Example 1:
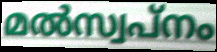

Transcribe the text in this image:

മൽസ്വപ്നം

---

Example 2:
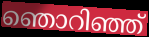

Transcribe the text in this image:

ഞൊറിഞ്ഞ്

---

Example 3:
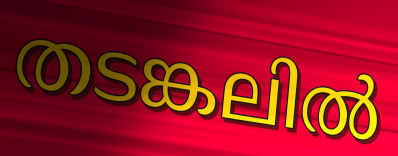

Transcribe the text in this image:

തടങ്കലിൽ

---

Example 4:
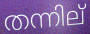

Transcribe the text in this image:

തന്നില്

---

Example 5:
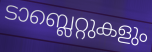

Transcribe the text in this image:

ടാബ്ലെറ്റുകളും